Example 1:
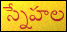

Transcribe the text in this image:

స్నేహల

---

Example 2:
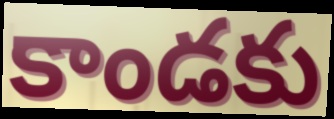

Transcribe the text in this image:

కాండకు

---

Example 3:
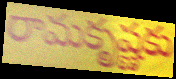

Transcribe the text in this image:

రామకృష్ణకు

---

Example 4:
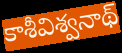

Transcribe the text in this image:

కాశీవిశ్వనాథ్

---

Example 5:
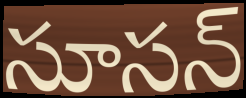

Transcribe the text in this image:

సూసన్